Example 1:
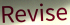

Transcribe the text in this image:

Revise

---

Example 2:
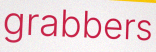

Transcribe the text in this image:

grabbers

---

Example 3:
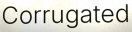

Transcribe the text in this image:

Corrugated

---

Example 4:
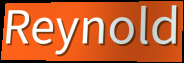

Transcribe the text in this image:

Reynold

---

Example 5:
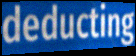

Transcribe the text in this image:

deducting